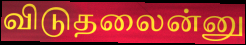
விடுதலைன்னு